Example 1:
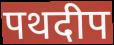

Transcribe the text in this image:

पथदीप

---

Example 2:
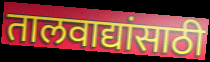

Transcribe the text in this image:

तालवाद्यांसाठी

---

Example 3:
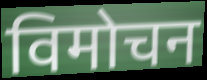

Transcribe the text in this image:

विमोचन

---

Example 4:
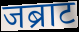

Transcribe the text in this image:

जब्राट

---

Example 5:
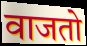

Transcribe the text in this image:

वाजतो